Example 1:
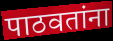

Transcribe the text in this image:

पाठवतांना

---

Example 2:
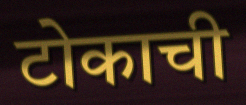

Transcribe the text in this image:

टोकाची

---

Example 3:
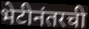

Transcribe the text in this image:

भेटीनंतरची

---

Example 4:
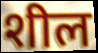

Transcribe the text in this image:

शील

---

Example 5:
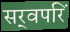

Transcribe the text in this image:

सर्वपरिं